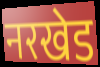
नरखेड